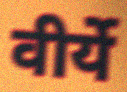
वीर्ये